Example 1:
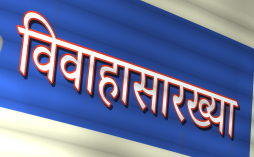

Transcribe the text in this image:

विवाहासारख्या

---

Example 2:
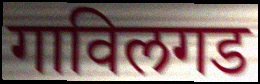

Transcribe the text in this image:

गाविलगड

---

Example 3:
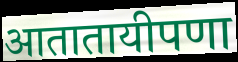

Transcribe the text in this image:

आतातायीपणा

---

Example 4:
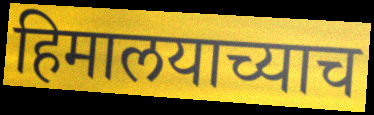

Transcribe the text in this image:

हिमालयाच्याच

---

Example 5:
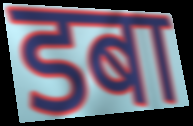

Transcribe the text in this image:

डबा